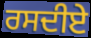
ਰਸਦੀਏ